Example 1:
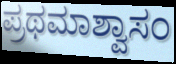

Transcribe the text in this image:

ಪ್ರಥಮಾಶ್ವಾಸಂ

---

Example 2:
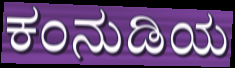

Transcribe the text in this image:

ಕಂನುಡಿಯ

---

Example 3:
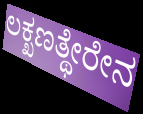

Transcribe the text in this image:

ಲಕ್ಖಣತ್ಥೇರೇನ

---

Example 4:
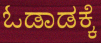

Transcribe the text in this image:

ಓಡಾಡಕ್ಕೆ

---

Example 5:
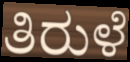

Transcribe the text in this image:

ತಿರುಳೆ